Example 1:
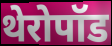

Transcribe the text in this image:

थेरोपॉड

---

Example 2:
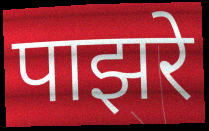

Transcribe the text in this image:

पाझरे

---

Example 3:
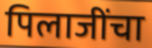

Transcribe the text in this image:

पिलाजींचा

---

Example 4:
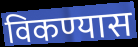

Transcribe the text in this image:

विकण्यास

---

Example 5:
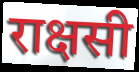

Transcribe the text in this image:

राक्षसी